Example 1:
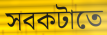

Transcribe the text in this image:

সবকটাতে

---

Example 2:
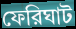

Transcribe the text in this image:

ফেরিঘাট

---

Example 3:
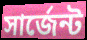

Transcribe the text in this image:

সার্জেন্ট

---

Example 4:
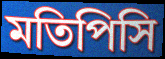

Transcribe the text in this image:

মতিপিসি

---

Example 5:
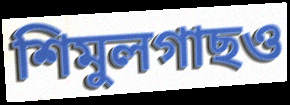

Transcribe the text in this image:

শিমুলগাছও